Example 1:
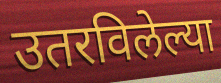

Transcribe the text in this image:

उतरविलेल्या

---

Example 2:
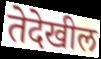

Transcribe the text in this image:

तेदेखील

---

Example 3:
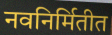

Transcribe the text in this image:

नवनिर्मितीत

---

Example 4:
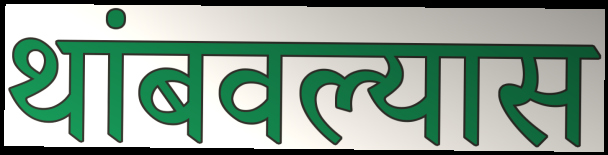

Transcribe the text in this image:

थांबवल्यास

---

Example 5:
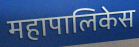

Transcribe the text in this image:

महापालिकेस